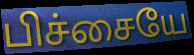
பிச்சையே